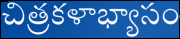
చిత్రకళాభ్యాసం